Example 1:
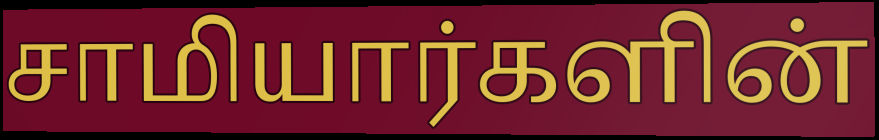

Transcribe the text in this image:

சாமியார்களின்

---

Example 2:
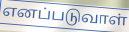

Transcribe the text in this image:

எனப்படுவாள்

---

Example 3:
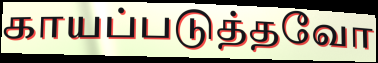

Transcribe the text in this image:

காயப்படுத்தவோ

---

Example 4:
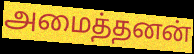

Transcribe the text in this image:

அமைத்தனன்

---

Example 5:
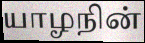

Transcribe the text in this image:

யாழநின்